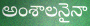
అంశాలనైనా